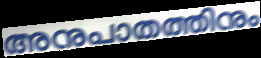
അനുപാതത്തിനും